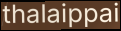
thalaippai